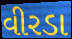
વીરડા